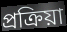
প্ৰক্ৰিয়া